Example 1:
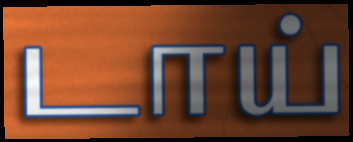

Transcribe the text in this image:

டாய்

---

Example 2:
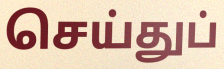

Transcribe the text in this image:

செய்துப்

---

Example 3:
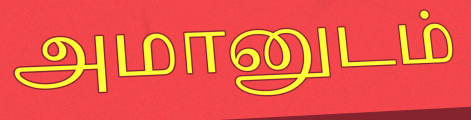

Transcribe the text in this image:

அமானுடம்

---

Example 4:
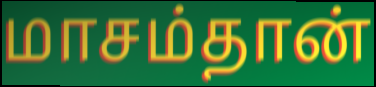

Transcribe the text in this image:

மாசம்தான்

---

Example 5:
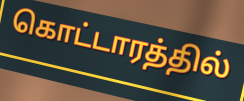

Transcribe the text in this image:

கொட்டாரத்தில்